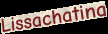
Lissachatina